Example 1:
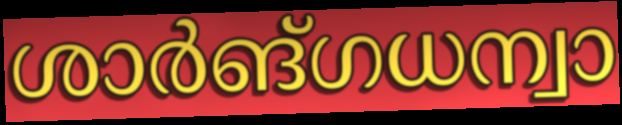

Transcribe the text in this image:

ശാർങ്ഗധന്വാ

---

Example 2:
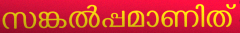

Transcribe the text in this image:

സങ്കൽപ്പമാണിത്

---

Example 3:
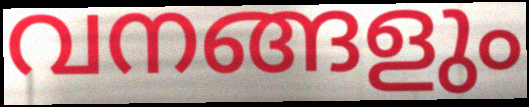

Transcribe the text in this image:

വനങ്ങളും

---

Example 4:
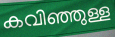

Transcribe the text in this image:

കവിഞ്ഞുള്ള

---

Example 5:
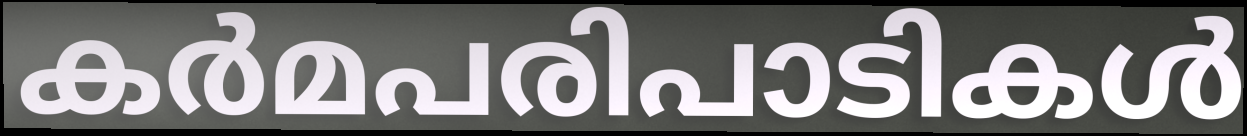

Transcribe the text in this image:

കർമപരിപാടികൾ